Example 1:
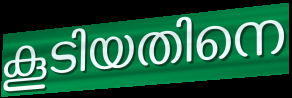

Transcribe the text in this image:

കൂടിയതിനെ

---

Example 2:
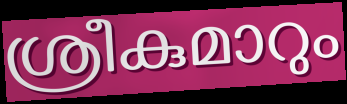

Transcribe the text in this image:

ശ്രീകുമാറും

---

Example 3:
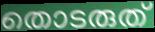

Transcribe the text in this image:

തൊടരുത്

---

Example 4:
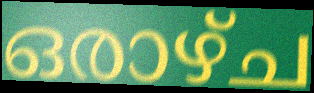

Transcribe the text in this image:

ഒരാഴ്ച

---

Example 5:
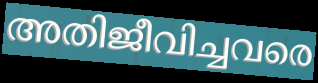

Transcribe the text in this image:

അതിജീവിച്ചവരെ